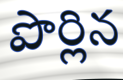
పొర్లిన